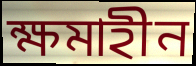
ক্ষমাহীন